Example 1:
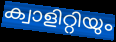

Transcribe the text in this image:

ക്വാളിറ്റിയും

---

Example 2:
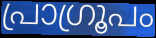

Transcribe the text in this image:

പ്രാഗ്രൂപം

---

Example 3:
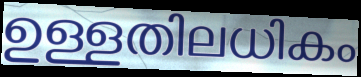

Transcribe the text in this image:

ഉള്ളതിലധികം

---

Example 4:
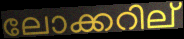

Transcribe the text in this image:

ലോക്കറില്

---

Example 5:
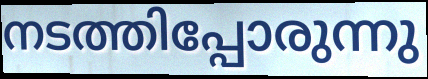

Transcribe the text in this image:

നടത്തിപ്പോരുന്നു